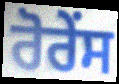
ਰੋਰੇਂਸ